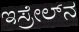
ಇಸ್ರೇಲ್‍ನ